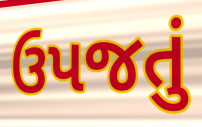
ઉપજતું